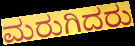
ಮರುಗಿದರು